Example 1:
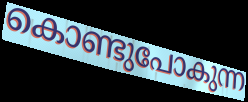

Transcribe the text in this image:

കൊണ്ടുപോകുന്ന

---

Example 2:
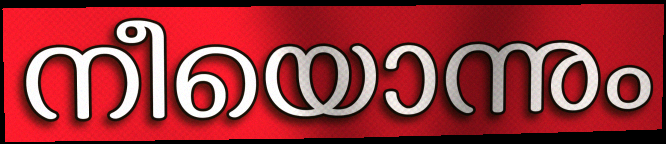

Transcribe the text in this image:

നീയൊന്നും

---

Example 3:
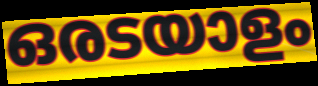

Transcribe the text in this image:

ഒരടയാളം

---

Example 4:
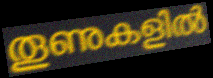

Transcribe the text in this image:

തൂണുകളിൽ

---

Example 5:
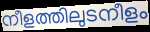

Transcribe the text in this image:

നീളത്തിലുടനീളം